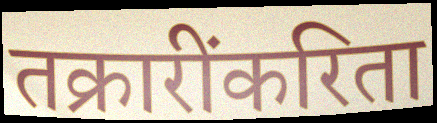
तक्रारींकरिता